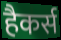
हैकर्स